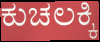
ಕುಚಲಕ್ಕಿ